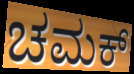
ಚಮಕ್